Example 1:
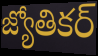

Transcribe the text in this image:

జ్యోతికర్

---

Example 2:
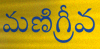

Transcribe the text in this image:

మణిగ్రీవ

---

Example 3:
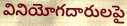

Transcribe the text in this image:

వినియోగదారులపై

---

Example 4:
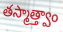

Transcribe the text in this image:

తస్మాత్త్వాం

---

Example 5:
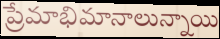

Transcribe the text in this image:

ప్రేమాభిమానాలున్నాయి